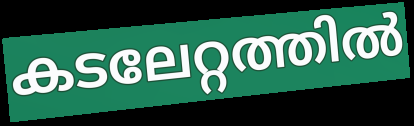
കടലേറ്റത്തിൽ